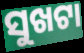
ସୁଖଟା